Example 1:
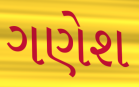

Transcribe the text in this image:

ગણેશ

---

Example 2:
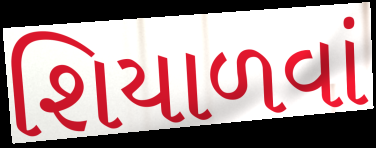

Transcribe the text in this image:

શિયાળવાં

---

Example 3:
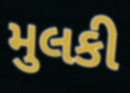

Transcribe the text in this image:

મુલકી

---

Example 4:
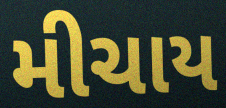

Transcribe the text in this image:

મીચાય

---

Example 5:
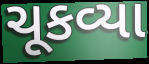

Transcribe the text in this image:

ચૂકવ્યા